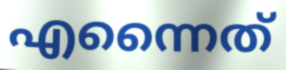
എന്നൈത്